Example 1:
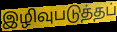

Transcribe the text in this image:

இழிவுபடுத்தப்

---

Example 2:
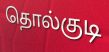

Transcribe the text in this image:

தொல்குடி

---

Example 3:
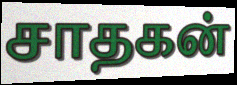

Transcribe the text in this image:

சாதகன்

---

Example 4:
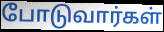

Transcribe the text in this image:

போடுவார்கள்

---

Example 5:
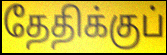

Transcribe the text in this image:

தேதிக்குப்